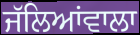
ਜੱਲਿਆਂਵਾਲਾ